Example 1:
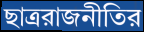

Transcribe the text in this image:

ছাত্ররাজনীতির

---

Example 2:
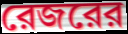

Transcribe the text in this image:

রেজরের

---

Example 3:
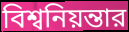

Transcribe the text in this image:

বিশ্বনিয়ন্তার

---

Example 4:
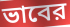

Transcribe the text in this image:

ভাবের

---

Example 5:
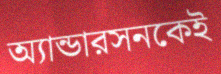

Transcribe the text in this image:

অ্যান্ডারসনকেই